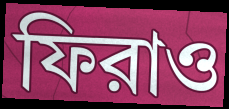
ফিরাও